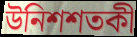
উনিশশতকী